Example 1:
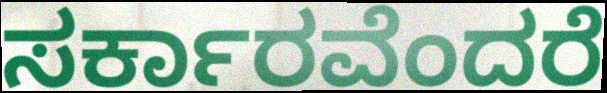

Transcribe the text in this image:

ಸರ್ಕಾರವೆಂದರೆ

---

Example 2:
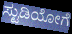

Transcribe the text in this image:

ಸ್ಟುಡಿಯೋಗೆ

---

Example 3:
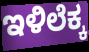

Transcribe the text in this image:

ಇಳಿಲೆಕ್ಕ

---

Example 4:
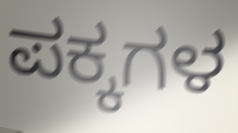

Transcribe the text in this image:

ಪಕ್ಕಗಳ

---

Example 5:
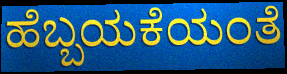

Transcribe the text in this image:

ಹೆಬ್ಬಯಕೆಯಂತೆ